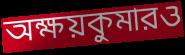
অক্ষয়কুমারও